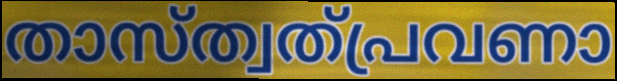
താസ്ത്വത്പ്രവണാ